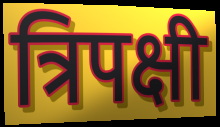
त्रिपक्षी